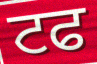
ਟਫ